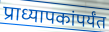
प्राध्यापकांपर्यंत